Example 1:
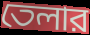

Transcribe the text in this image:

তেলার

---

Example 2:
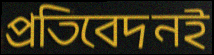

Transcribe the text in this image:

প্রতিবেদনই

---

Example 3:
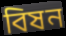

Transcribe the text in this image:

বিষন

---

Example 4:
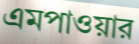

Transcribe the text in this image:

এমপাওয়ার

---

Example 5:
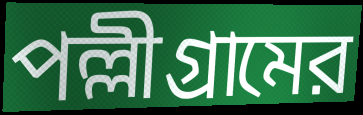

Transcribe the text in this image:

পল্লীগ্রামের